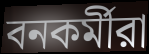
বনকর্মীরা